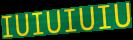
IUIUIUIU